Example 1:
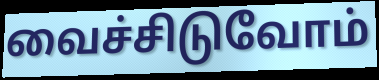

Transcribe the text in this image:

வைச்சிடுவோம்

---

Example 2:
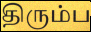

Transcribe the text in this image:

திரும்ப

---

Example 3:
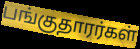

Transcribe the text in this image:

பங்குதாரர்கள்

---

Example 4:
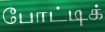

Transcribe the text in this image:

போட்டிக்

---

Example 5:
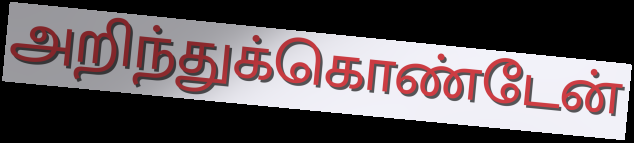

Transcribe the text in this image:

அறிந்துக்கொண்டேன்